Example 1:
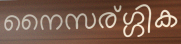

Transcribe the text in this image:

നൈസര്ഗ്ഗിക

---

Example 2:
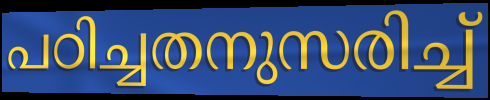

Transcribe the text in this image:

പഠിച്ചതനുസരിച്ച്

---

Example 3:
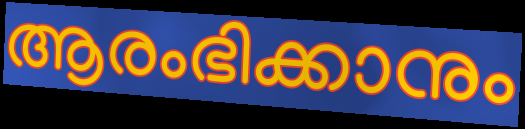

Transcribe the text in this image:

ആരംഭിക്കാനും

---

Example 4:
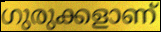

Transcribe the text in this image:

ഗുരുക്കളാണ്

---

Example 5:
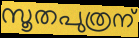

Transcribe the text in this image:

സൂതപുത്രന്